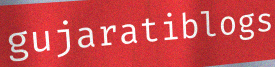
gujaratiblogs